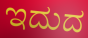
ಇದುದ